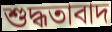
শুদ্ধতাবাদ